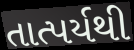
તાત્પર્યથી